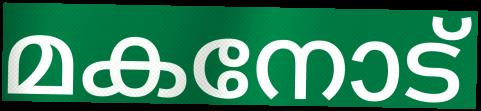
മകനോട്